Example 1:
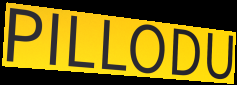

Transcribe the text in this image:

PILLODU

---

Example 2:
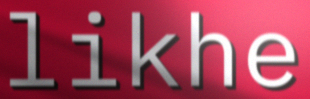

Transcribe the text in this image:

likhe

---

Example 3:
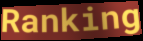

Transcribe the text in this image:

Ranking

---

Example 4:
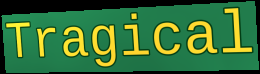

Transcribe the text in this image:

Tragical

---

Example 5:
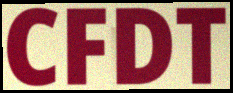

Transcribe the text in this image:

CFDT